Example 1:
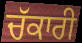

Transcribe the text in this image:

ਚੱਕਾਰੀ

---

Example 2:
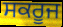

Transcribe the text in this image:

ਸਕਰੂਜ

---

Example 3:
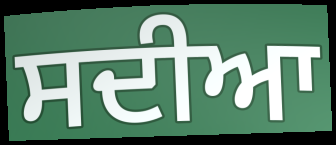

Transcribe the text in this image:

ਸਦੀਆ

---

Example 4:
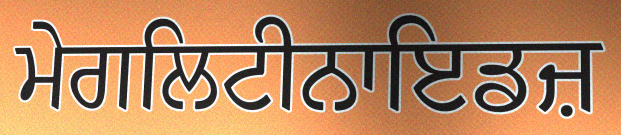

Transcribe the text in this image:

ਮੇਗਲਿਟੀਨਾਇਡਜ਼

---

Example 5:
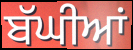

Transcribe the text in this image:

ਬੱਘੀਆਂ